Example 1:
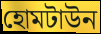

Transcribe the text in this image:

হোমটাউন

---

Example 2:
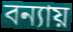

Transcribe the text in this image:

বন্যায়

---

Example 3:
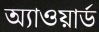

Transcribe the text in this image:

অ্যাওয়ার্ড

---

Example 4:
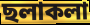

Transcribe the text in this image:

ছলাকলা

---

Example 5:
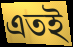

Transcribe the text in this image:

এতই